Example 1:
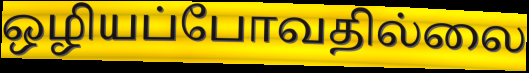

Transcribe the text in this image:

ஒழியப்போவதில்லை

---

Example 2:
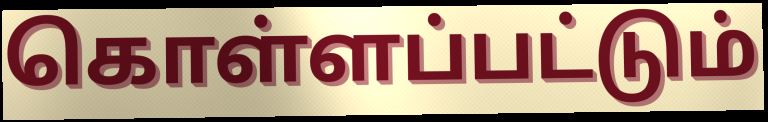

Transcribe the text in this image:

கொள்ளப்பட்டும்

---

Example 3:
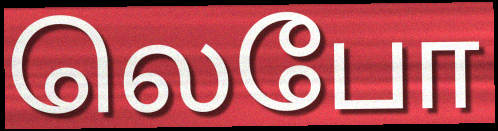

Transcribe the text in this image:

லெபோ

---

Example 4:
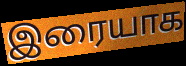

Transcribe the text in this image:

இரையாக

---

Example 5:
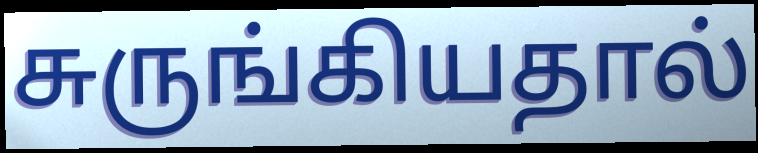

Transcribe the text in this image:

சுருங்கியதால்